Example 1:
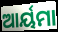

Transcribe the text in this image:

ଆର୍ୟମା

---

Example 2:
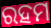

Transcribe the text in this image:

ରହମ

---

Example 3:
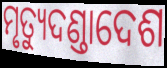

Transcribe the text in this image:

ମୃତ୍ୟୁଦଣ୍ଡାଦେଶ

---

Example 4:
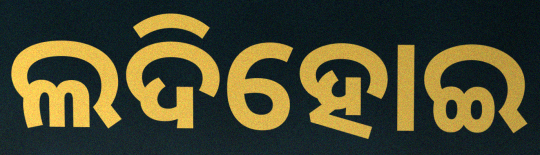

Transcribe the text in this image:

ଲଦିହୋଇ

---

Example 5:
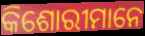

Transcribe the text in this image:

କିଶୋରୀମାନେ